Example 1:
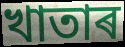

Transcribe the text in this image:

খাতাৰ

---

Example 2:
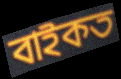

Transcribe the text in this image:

বাইকত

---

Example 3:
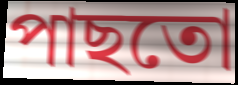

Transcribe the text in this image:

পাছতো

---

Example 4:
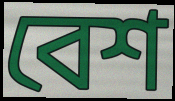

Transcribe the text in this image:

বেশ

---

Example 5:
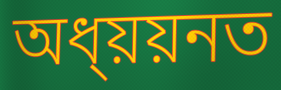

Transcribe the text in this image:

অধ্য়য়নত